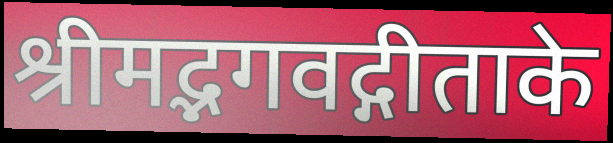
श्रीमद्भगवद्गीताके